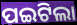
ପଇଟିଲା